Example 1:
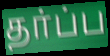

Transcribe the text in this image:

தர்ப்ப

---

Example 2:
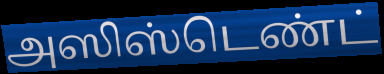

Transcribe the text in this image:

அஸிஸ்டெண்ட்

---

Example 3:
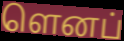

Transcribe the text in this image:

ளெனப்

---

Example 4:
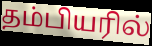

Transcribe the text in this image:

தம்பியரில்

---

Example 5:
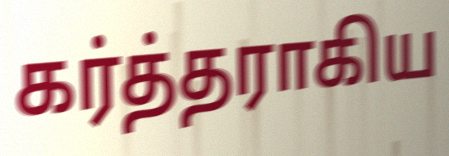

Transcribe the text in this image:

கர்த்தராகிய